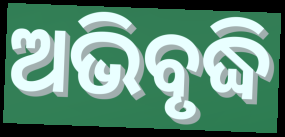
ଅଭିବୃଦ୍ଧି